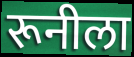
रूनीला